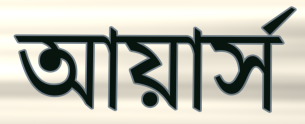
আয়ার্স